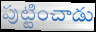
పుట్టించాడు